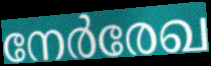
നേർരേഖ